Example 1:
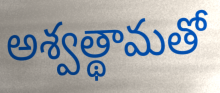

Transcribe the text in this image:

అశ్వత్థామతో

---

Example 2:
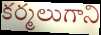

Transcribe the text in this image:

కర్మలుగాని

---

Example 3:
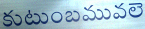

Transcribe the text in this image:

కుటుంబమువలె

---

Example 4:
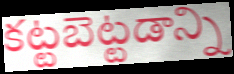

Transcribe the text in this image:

కట్టబెట్టడాన్ని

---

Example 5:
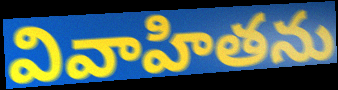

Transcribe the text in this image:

వివాహితను